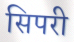
सिपरी